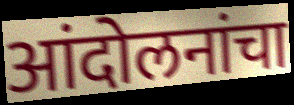
आंदोलनांचा